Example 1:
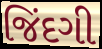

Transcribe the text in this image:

જિંદગી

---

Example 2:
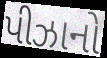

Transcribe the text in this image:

પીઝાનો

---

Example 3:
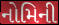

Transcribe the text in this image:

નોમિની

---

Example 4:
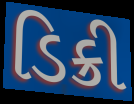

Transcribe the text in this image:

ડિક્રી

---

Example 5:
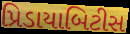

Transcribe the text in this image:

પ્રિડાયાબિટીસ